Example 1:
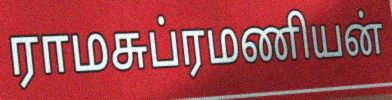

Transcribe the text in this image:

ராமசுப்ரமணியன்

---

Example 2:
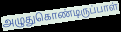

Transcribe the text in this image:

அழுதுகொண்டிருப்பாள்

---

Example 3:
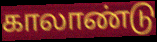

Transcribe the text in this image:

காலாண்டு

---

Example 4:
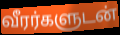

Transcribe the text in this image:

வீரர்களுடன்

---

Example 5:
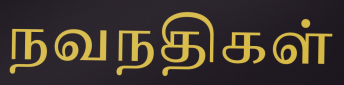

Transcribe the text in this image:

நவநதிகள்